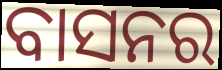
ବାସନର